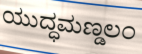
ಯುದ್ಧಮಣ್ಡಲಂ